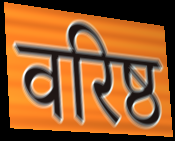
वरिष्ठ